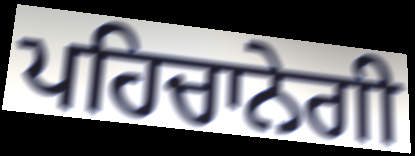
ਪਹਿਚਾਨੇਗੀ